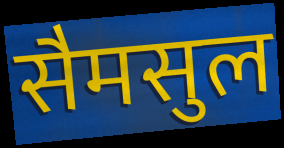
सैमसुल